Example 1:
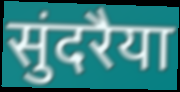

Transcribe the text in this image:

सुंदरैया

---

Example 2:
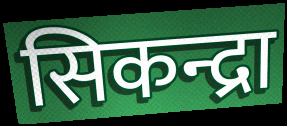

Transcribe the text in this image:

सिकन्द्रा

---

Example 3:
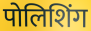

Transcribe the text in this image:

पोलिशिंग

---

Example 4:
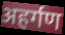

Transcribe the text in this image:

अहर्गण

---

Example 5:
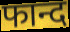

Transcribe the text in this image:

फान्द